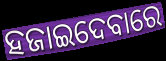
ହଜାଇଦେବାରେ